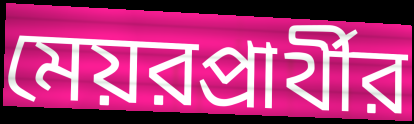
মেয়রপ্রার্থীর